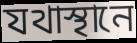
যথাস্থানে